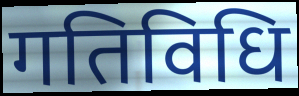
गतिविधि